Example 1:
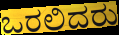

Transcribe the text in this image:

ಒರಲಿದರು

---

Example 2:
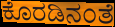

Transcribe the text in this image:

ಕೊರಡಿನಂತೆ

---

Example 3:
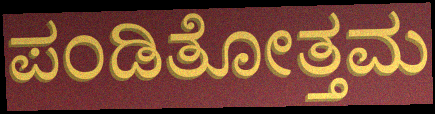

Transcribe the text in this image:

ಪಂಡಿತೋತ್ತಮ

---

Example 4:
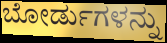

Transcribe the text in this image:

ಬೋರ್ಡುಗಳನ್ನು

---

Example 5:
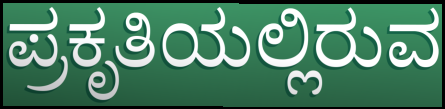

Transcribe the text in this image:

ಪ್ರಕೃತಿಯಲ್ಲಿರುವ